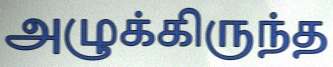
அழுக்கிருந்த